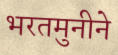
भरतमुनीने